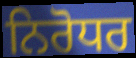
ਨਿਰੋਧਰ